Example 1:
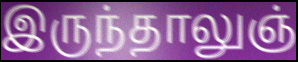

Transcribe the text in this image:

இருந்தாலுஞ்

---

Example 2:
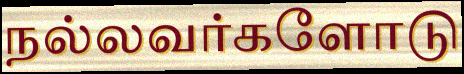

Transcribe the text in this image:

நல்லவர்களோடு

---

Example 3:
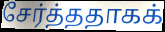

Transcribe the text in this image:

சேர்த்ததாகக்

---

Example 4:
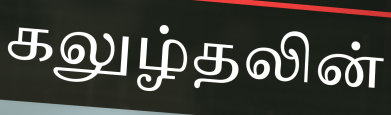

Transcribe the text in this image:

கலுழ்தலின்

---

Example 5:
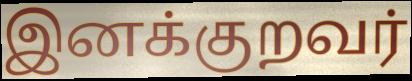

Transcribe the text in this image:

இனக்குறவர்